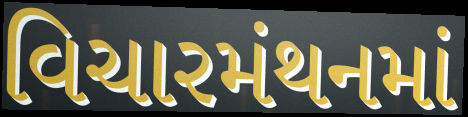
વિચારમંથનમાં